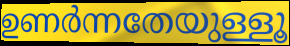
ഉണർന്നതേയുള്ളൂ